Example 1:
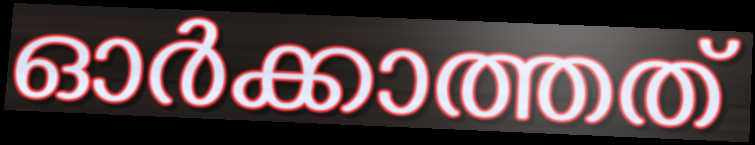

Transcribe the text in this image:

ഓർക്കാത്തത്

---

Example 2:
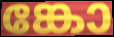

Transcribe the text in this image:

ങ്കോ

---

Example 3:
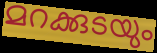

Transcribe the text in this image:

മറക്കുടയും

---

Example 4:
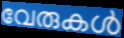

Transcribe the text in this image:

വേരുകൾ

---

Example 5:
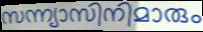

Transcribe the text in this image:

സന്ന്യാസിനിമാരും